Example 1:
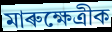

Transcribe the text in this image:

মাৰুক্ষেত্ৰীক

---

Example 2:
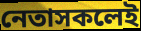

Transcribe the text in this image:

নেতাসকলেই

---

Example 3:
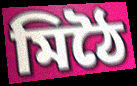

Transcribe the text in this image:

মিঠৈ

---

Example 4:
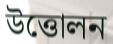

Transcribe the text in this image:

উত্তোলন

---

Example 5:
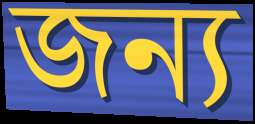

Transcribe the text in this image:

জন্য